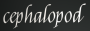
cephalopod